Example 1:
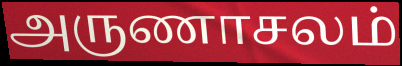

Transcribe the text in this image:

அருணாசலம்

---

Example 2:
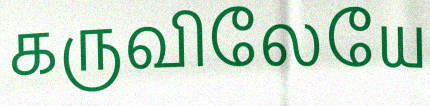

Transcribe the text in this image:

கருவிலேயே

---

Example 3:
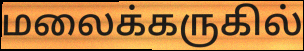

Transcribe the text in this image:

மலைக்கருகில்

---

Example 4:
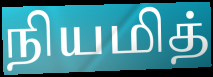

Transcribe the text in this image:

நியமித்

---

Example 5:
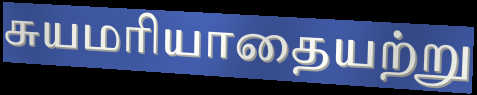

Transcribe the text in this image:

சுயமரியாதையற்று